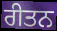
ਰੀਤਨ